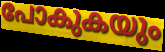
പോകുകയും